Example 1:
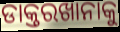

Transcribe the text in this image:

ଡାକ୍ତରଖାନାକୁ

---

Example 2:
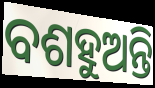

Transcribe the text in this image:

ବଶହୁଅନ୍ତି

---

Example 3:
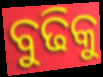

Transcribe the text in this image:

ବୁଢିକୁ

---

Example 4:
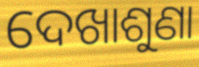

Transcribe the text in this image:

ଦେଖାଶୁଣା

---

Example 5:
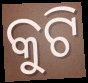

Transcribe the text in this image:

କୁଟି